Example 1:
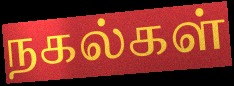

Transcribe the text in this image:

நகல்கள்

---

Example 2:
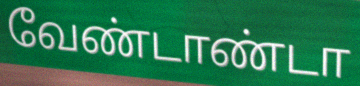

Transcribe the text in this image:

வேண்டாண்டா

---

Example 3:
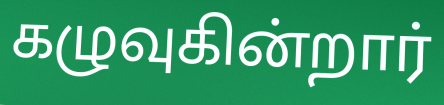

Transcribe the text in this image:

கழுவுகின்றார்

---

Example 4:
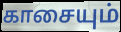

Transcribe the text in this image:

காசையும்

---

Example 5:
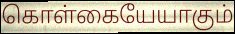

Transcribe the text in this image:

கொள்கையேயாகும்